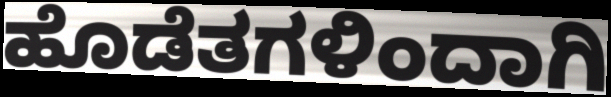
ಹೊಡೆತಗಳಿಂದಾಗಿ